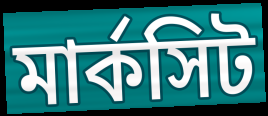
মার্কসিট